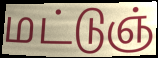
மட்டுஞ்